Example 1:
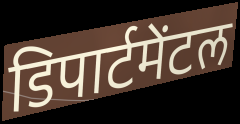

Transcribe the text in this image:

डिपार्टमेंटल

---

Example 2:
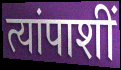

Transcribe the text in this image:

त्यांपाशीं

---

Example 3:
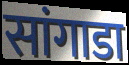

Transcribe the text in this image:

सांगाडा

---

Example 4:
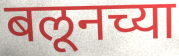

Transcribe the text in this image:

बलूनच्या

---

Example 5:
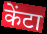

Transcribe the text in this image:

केंटा